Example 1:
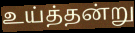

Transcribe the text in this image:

உய்த்தன்று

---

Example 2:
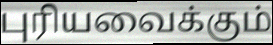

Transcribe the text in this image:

புரியவைக்கும்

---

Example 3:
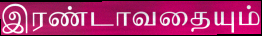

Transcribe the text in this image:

இரண்டாவதையும்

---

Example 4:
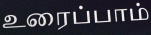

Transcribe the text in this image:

உரைப்பாம்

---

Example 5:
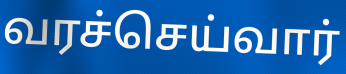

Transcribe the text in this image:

வரச்செய்வார்